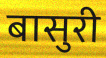
बासुरी